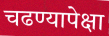
चढण्यापेक्षा